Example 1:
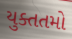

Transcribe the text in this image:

યુક્તતમો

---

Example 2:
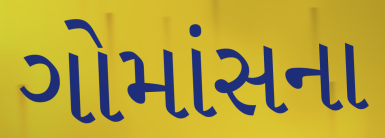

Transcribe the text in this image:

ગોમાંસના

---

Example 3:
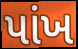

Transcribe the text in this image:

પાંખ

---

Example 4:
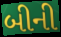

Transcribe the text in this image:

બીની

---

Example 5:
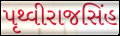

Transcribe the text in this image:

પૃથ્વીરાજસિંહ